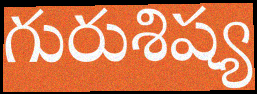
గురుశిష్య